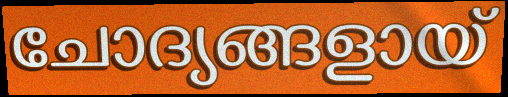
ചോദ്യങ്ങളായ്